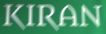
KIRAN